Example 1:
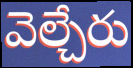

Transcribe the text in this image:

వెల్చేరు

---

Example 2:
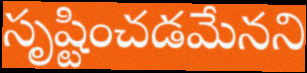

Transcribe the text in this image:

సృష్టించడమేనని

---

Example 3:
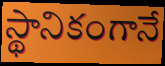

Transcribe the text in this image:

స్థానికంగానే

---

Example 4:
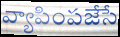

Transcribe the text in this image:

వ్యాపింపజేసే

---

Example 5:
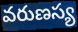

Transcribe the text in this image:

వరుణస్య